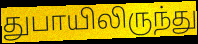
துபாயிலிருந்து